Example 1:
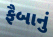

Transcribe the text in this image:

ફૈબાનું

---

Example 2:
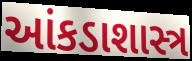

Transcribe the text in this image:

આંકડાશાસ્ત્ર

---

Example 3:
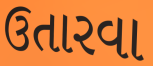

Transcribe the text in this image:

ઉતારવા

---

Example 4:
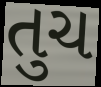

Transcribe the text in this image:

તુચ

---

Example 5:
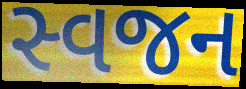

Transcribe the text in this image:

સ્વજન